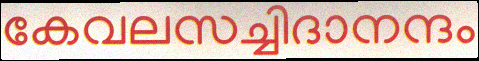
കേവലസച്ചിദാനന്ദം